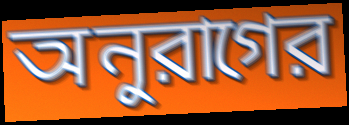
অনুরাগের